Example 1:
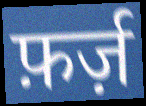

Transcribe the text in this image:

फ़र्ज़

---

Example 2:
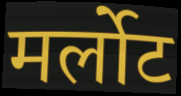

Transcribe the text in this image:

मर्लोट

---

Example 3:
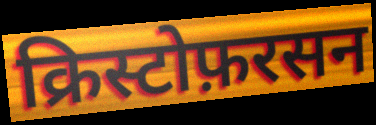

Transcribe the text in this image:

क्रिस्टोफ़रसन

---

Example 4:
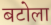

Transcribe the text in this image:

बटोला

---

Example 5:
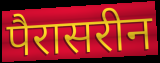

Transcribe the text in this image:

पैरासरीन